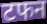
टफन